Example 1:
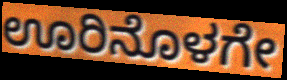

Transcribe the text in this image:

ಊರಿನೊಳಗೇ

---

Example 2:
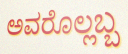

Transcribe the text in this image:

ಅವರೊಲ್ಲಬ್ಬ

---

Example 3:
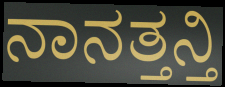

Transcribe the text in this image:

ನಾನತ್ತನ್ತಿ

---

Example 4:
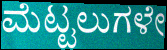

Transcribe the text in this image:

ಮೆಟ್ಟಲುಗಳೇ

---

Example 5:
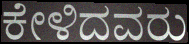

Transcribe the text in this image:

ಕೇಳಿದವರು